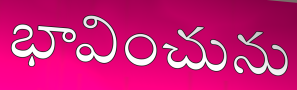
భావించును